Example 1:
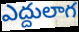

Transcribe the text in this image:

ఎద్దులాగ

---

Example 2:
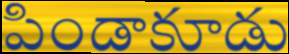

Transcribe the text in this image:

పిండాకూడు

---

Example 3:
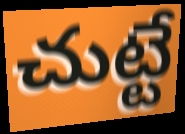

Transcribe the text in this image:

చుట్టే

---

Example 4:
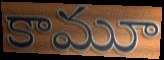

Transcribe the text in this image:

కామూ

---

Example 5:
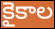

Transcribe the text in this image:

కైకాల